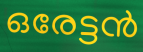
ഒരേട്ടൻ